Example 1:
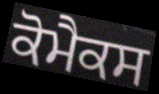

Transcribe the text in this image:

ਕੋਮੈਕਸ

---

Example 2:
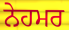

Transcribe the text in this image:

ਨੇਹਮਰ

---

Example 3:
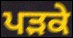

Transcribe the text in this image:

ਪੜਕੇ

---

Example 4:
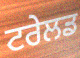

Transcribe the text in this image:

ਟਰੇਲਡ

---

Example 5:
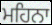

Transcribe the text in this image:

ਮਹਿਨਾ